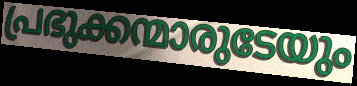
പ്രഭുക്കന്മാരുടേയും